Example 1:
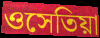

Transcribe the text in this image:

ওসেতিয়া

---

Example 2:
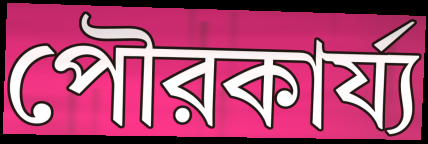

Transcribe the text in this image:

পৌরকার্য্য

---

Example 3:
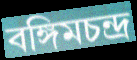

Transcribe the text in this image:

বঙ্গিমচন্দ্র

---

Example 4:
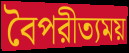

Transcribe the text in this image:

বৈপরীত্যময়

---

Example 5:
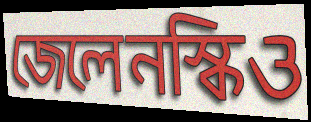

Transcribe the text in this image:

জেলেনস্কিও